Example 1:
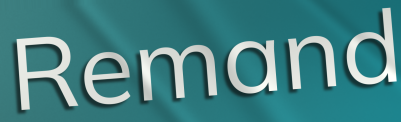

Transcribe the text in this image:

Remand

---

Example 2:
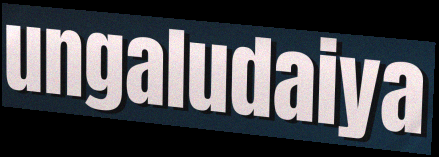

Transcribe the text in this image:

ungaludaiya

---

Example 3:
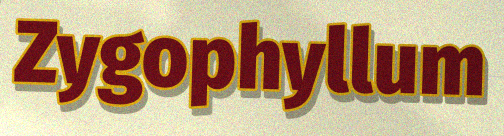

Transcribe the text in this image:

Zygophyllum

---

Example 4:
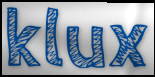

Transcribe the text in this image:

klux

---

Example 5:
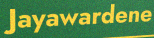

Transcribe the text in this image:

Jayawardene